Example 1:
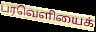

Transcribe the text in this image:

பரவெளியைக்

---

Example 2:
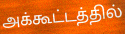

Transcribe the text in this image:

அக்கூட்டத்தில்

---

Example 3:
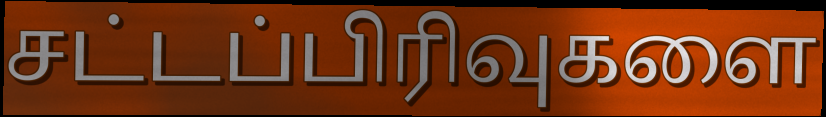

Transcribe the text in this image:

சட்டப்பிரிவுகளை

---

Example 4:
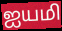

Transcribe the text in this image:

ஐயமி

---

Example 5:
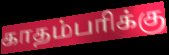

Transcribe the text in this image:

காதம்பரிக்கு